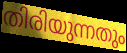
തിരിയുന്നതും